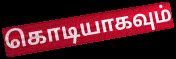
கொடியாகவும்